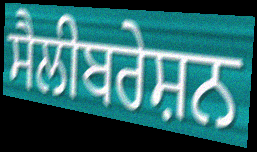
ਸੈਲੀਬਰੇਸ਼ਨ